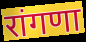
रांगणा